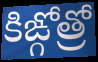
కిఙ్గోత్రో